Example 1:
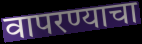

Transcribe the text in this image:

वापरण्याचा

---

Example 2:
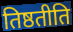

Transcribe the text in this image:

तिष्ठतीति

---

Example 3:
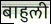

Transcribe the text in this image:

बाहुली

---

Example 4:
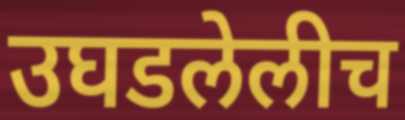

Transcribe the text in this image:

उघडलेलीच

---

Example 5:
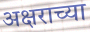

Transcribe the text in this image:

अक्षराच्या